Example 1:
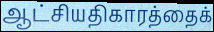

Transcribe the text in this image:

ஆட்சியதிகாரத்தைக்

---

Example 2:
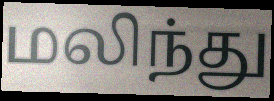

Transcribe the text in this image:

மலிந்து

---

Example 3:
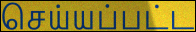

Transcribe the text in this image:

செய்யப்பட்ட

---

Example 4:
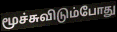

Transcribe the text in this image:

மூச்சுவிடும்போது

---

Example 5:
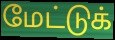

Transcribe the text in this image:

மேட்டுக்